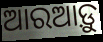
ଆରଆଡ଼ୁ